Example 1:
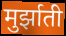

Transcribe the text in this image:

मुर्झाती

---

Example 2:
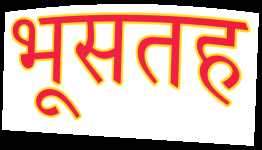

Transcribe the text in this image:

भूसतह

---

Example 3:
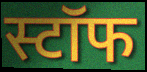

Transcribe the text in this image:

स्टॉफ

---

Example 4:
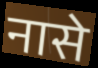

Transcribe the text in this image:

नासे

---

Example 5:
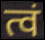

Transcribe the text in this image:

त्वं